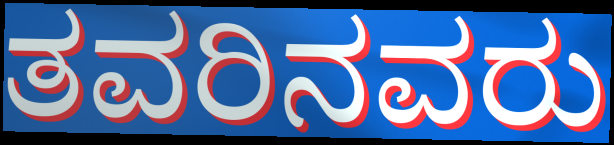
ತವರಿನವರು